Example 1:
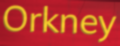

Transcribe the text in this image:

Orkney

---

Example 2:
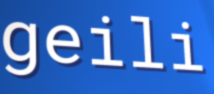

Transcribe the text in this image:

geili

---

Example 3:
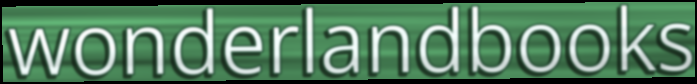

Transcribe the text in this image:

wonderlandbooks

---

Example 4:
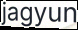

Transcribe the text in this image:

jagyun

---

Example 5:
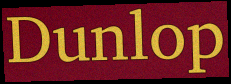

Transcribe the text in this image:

Dunlop